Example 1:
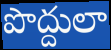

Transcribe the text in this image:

పొద్దులా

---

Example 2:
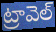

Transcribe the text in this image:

ట్రావెల్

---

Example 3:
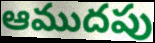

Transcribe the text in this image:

ఆముదపు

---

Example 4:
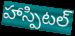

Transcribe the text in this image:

హాస్పిటల్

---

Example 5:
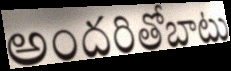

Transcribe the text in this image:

అందరితోబాటు